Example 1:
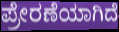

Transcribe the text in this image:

ಪ್ರೇರಣೆಯಾಗಿದೆ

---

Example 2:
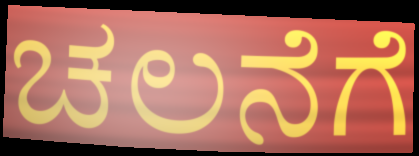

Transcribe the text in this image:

ಚಲನೆಗೆ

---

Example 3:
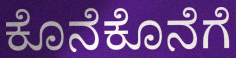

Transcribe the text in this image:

ಕೊನೆಕೊನೆಗೆ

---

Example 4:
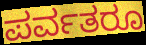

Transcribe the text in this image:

ಪರ್ವತರೂ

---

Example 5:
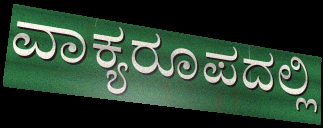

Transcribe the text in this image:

ವಾಕ್ಯರೂಪದಲ್ಲಿ